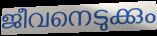
ജീവനെടുക്കും